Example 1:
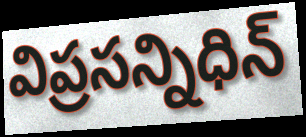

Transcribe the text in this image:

విప్రసన్నిధిన్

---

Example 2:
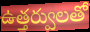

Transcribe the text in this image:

ఉత్తర్వులతో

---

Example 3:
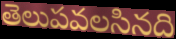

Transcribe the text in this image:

తెలుపవలసినది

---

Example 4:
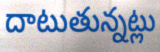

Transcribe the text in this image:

దాటుతున్నట్లు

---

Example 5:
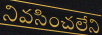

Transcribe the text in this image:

నివసించలేని